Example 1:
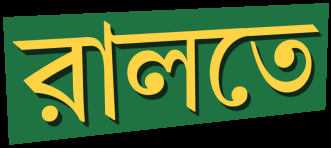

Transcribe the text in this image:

রালতে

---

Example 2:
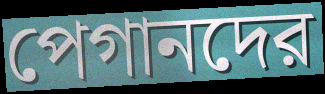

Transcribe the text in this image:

পেগানদের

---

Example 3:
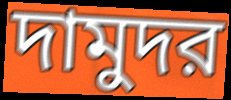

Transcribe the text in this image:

দামুদর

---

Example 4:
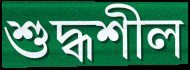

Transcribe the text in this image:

শুদ্ধশীল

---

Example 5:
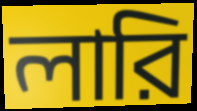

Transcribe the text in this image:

লারি